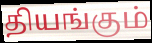
தியங்கும்